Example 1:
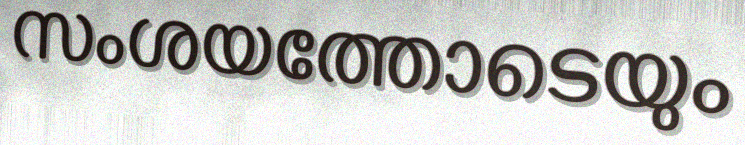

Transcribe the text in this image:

സംശയത്തോടെയും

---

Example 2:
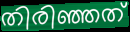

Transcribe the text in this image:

തിരിഞ്ഞത്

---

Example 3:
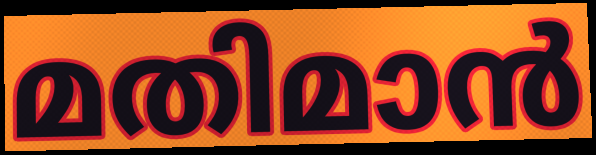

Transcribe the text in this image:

മതിമാൻ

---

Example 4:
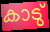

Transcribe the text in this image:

കാടു്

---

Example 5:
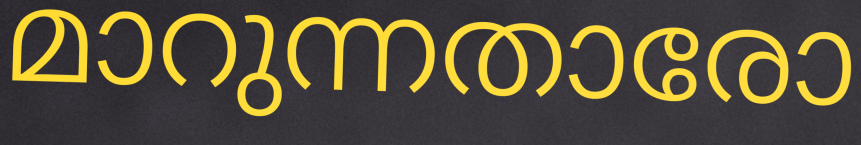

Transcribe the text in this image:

മാറുന്നതാരോ